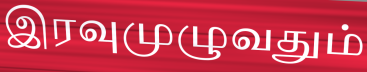
இரவுமுழுவதும்